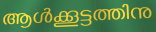
ആൾക്കൂട്ടത്തിനു